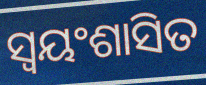
ସ୍ବୟଂଶାସିତ